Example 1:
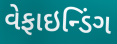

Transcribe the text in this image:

વેફાઇન્ડિંગ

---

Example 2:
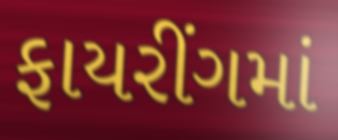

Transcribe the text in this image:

ફાયરીંગમાં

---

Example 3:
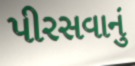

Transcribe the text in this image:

પીરસવાનું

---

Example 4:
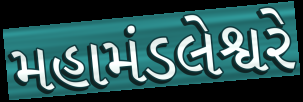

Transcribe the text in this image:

મહામંડલેશ્વરે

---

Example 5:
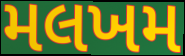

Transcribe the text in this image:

મલખમ